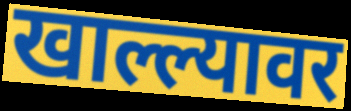
खाल्ल्यावर